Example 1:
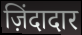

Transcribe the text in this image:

ज़िंदादार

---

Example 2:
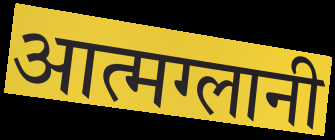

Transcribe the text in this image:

आत्मग्लानी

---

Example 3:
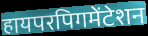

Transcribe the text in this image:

हायपरपिगमेंटेशन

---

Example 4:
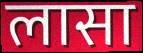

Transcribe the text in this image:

लासा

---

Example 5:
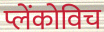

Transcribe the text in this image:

प्लेंकोविच